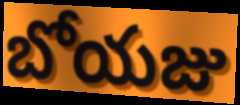
బోయజు